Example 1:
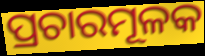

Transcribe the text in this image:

ପ୍ରଚାରମୂଳକ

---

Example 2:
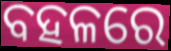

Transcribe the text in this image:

ବହଳରେ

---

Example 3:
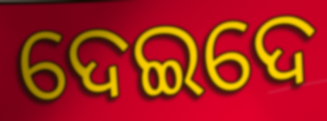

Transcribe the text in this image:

ଦେଇଦେ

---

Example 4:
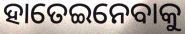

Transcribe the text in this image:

ହାତେଇନେବାକୁ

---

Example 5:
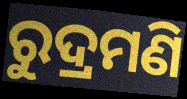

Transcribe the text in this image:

ରୁଦ୍ରମଣି